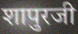
शापुरजी